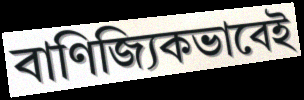
বাণিজ্যিকভাবেই